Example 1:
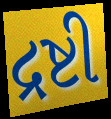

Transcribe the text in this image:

દ્રષ્ટી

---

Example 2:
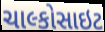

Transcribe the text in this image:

ચાલ્કોસાઇટ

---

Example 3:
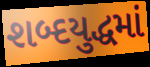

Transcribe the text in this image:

શબ્દયુદ્ધમાં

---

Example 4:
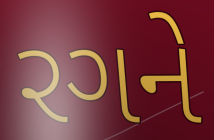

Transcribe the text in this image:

રગને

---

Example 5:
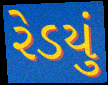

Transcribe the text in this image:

રેડયું